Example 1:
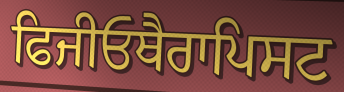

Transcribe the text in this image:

ਫਿਜੀਓਥੈਰਾਪਿਸਟ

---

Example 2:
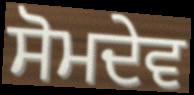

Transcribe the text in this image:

ਸੋਮਦੇਵ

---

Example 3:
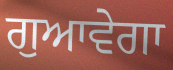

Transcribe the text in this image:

ਗੁਆਵੇਗਾ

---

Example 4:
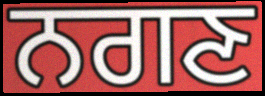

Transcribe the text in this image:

ਨਗਣ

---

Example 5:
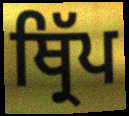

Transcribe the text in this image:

ਥ੍ਰਿੱਪ